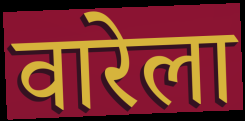
वारेला